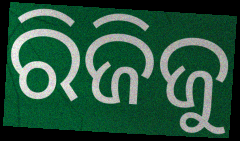
ରିଜିଜୁ